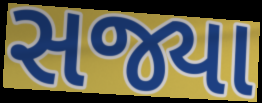
સજ્યા